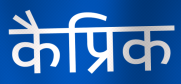
कैप्रिक